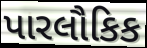
પારલૌકિક